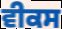
ਵੀਕਸ